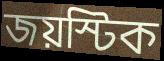
জয়স্টিক